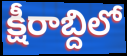
క్షీరాబ్దిలో